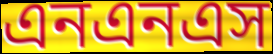
এনএনএস